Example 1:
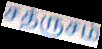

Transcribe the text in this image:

சத்ருசம்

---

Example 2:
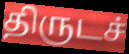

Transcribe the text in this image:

திருடச்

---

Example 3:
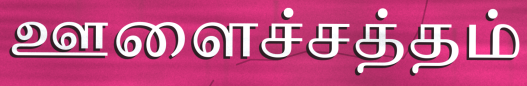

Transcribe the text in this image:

ஊளைச்சத்தம்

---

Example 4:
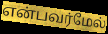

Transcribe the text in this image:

என்பவர்மேல்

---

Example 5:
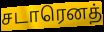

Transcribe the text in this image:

சடாரெனத்